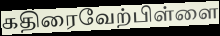
கதிரைவேற்பிள்ளை